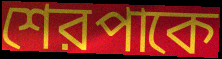
শেরপাকে